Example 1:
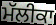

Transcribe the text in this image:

ਮੱਲੀਕਾ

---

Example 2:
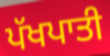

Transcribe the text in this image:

ਪੱਖਪਾਤੀ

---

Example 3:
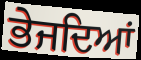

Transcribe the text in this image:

ਭੇਜਦਿਆਂ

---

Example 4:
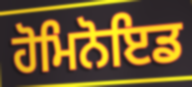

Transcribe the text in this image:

ਹੋਮਿਨੋਇਡ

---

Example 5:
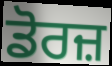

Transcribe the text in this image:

ਡੋਰਜ਼